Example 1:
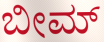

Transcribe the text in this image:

ಬೀಮ್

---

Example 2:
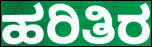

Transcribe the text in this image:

ಹರಿತಿರ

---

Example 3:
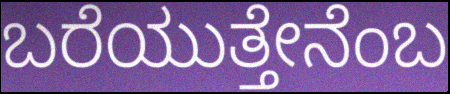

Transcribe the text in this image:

ಬರೆಯುತ್ತೇನೆಂಬ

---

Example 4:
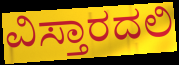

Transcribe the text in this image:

ವಿಸ್ತಾರದಲಿ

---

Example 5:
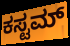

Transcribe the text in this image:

ಕಸ್ಟಮ್